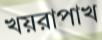
খয়রাপাখ